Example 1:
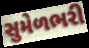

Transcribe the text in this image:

સુમેળભરી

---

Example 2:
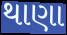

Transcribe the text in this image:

થાણા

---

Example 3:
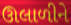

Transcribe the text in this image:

ઊલાળીને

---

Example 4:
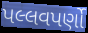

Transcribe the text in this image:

પલ્લવપર્ણો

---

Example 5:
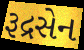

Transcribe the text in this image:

રૂદ્રસેન